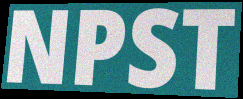
NPST